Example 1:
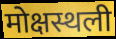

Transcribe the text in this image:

मोक्षस्थली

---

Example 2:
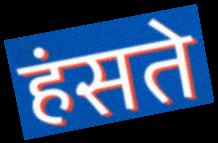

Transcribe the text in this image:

हंसते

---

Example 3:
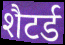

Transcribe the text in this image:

शैटर्ड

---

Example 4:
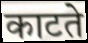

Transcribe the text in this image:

काटते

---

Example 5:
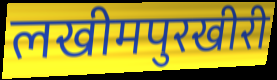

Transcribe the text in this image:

लखीमपुरखीरी